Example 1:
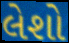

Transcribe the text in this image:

લેશો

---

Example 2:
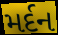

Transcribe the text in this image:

મર્દન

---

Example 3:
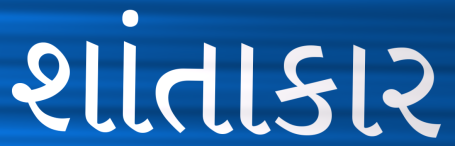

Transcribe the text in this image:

શાંતાકાર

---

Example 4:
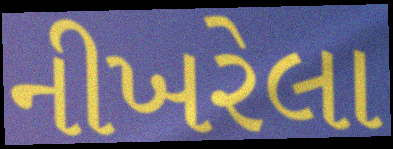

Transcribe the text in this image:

નીખરેલા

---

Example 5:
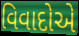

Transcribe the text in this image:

વિવાદોએ